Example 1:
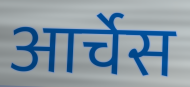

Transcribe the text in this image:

आर्चेस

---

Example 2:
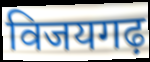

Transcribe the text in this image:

विजयगढ़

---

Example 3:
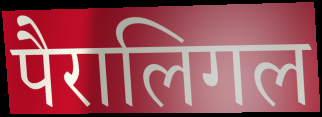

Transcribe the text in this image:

पैरालिगल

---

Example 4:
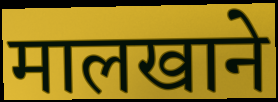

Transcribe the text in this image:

मालखाने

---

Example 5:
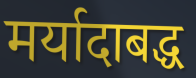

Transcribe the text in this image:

मर्यादाबद्ध